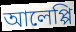
আলেপ্পি